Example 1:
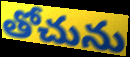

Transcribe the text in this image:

తోచును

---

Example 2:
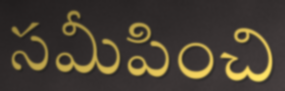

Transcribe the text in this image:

సమీపించి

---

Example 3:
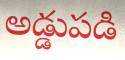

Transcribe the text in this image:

అడ్డుపడి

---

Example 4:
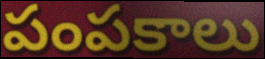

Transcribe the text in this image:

పంపకాలు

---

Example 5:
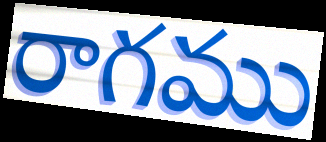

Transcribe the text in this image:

రాగము